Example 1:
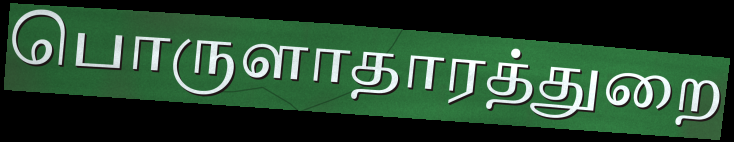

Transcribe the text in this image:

பொருளாதாரத்துறை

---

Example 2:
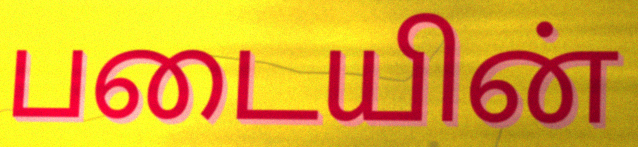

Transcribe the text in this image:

படையின்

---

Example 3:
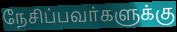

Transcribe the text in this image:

நேசிப்பவர்களுக்கு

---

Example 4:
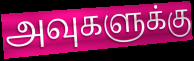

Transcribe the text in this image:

அவுகளுக்கு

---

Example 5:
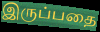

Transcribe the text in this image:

இருப்பதை